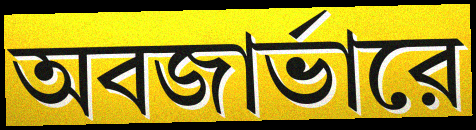
অবজার্ভারে